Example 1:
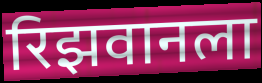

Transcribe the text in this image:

रिझवानला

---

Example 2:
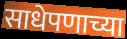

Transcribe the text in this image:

साधेपणाच्या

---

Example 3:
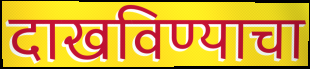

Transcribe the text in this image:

दाखविण्याचा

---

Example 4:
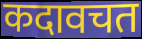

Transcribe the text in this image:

कदावचत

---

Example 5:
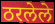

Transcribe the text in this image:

ठरलेले